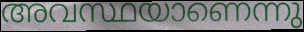
അവസ്ഥയാണെന്നു